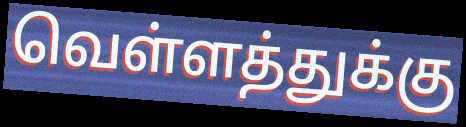
வெள்ளத்துக்கு